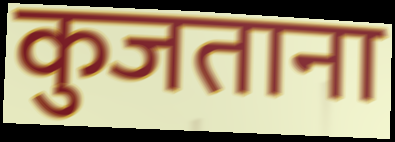
कुजताना